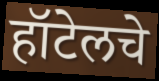
हॉटेलचे